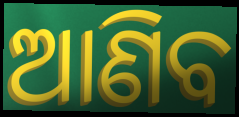
ଆଣିବ